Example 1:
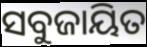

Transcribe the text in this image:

ସବୁଜାୟିତ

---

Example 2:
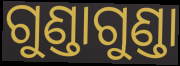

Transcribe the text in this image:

ଗୁଣ୍ଡାଗୁଣ୍ଡା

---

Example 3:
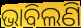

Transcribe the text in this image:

ଭାବିଲଣି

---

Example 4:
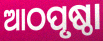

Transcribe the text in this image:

ଆଠପୃଷ୍ଠା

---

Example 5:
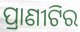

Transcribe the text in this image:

ପ୍ରାଣୀଟିର